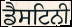
ਡੈਸਟਿਨੀ